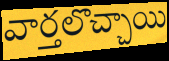
వార్తలొచ్చాయి